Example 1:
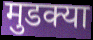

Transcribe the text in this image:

मुडक्या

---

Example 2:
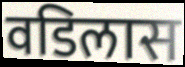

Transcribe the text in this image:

वडिलास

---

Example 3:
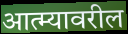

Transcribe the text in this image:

आत्म्यावरील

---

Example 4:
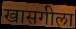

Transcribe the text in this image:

खासगीला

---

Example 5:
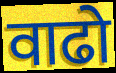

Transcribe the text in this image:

वाढो